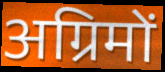
अग्रिमों